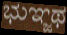
ಭುಞ್ಜಥ